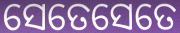
ସେତେସେତେ